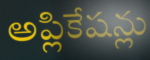
అప్లికేషన్లు